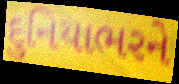
દુનિયાભરને